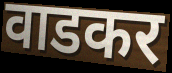
वाडकर